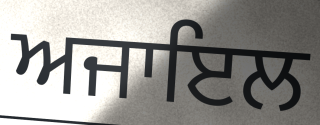
ਅਜਾਇਲ